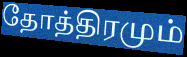
தோத்திரமும்